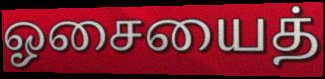
ஓசையைத்